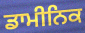
ਡਾਮੀਨਿਕ